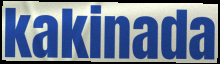
kakinada